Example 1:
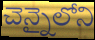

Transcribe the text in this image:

చెన్నైలోని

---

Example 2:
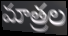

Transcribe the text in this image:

మాత్రల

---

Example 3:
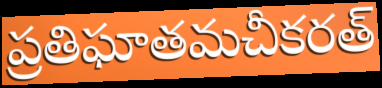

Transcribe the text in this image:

ప్రతిఘాతమచీకరత్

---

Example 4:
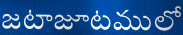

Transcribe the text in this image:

జటాజూటములో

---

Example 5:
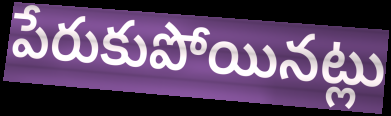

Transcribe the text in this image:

పేరుకుపోయినట్లు